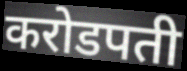
करोडपती